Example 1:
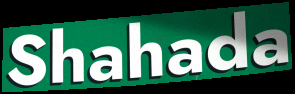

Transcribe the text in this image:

Shahada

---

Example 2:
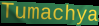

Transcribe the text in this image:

Tumachya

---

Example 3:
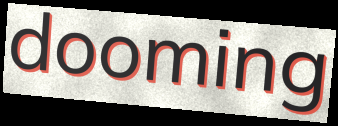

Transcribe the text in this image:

dooming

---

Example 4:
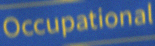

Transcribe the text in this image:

Occupational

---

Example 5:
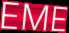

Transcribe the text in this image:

EME